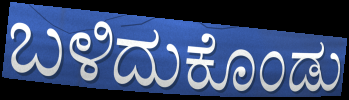
ಬಳಿದುಕೊಂಡು